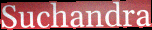
Suchandra